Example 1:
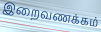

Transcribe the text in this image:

இறைவணக்கம்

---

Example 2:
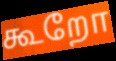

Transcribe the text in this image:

கூறோ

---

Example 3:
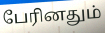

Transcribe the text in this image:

பேரினதும்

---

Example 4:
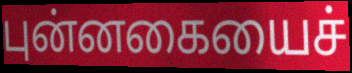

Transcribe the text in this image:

புன்னகையைச்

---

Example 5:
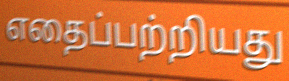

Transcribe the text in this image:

எதைப்பற்றியது